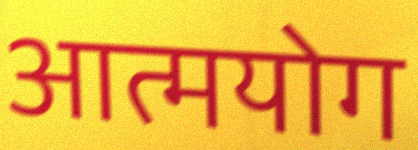
आत्मयोग